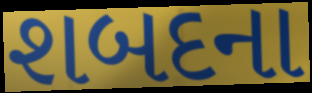
શબદના